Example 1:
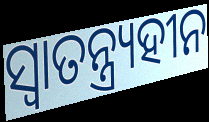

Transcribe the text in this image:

ସ୍ଵାତନ୍ତ୍ର୍ୟହୀନ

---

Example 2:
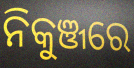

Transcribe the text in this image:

ନିକୁଞ୍ଜରେ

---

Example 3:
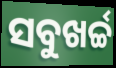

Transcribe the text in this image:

ସବୁଖର୍ଚ୍ଚ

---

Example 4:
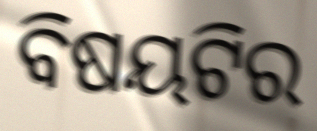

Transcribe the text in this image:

ବିଷୟଟିର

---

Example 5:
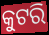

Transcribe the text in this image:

କୁଟରି